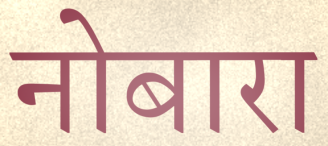
नोबारा